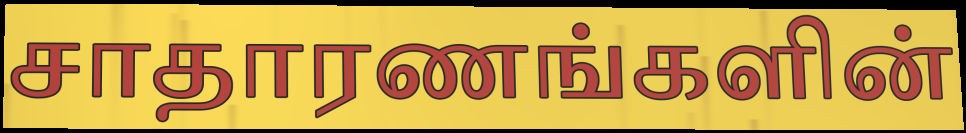
சாதாரணங்களின்